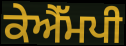
ਕੇਐੱਮਪੀ